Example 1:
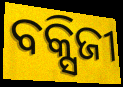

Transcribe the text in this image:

ବକ୍ସିଜୀ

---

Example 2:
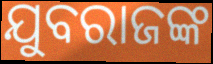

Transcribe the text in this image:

ଯୁବରାଜଙ୍କ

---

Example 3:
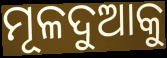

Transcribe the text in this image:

ମୂଳଦୁଆକୁ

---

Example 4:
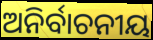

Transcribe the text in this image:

ଅନିର୍ବାଚନୀୟ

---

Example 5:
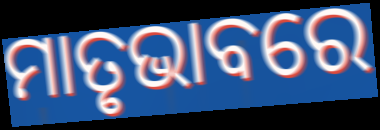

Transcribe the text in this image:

ମାତୃଭାବରେ